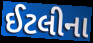
ઈટલીના